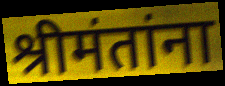
श्रीमंतांना